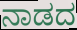
ನಾಡದ